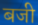
बजी